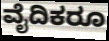
ವೈದಿಕರೂ